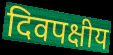
दिवपक्षीय